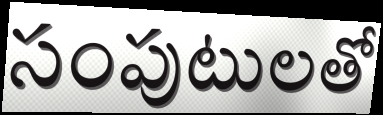
సంపుటులతో